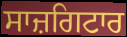
ਸਾਜ਼ਗਿਟਾਰ